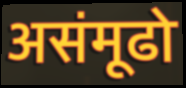
असंमूढो